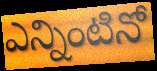
ఎన్నింటినో